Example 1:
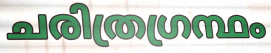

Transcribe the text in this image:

ചരിത്രഗ്രന്ഥം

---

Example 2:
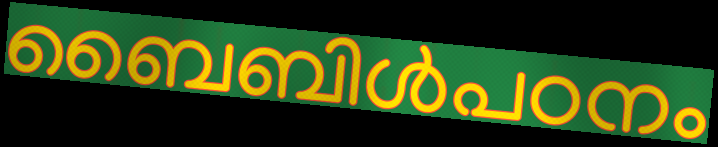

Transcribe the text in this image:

ബൈബിൾപഠനം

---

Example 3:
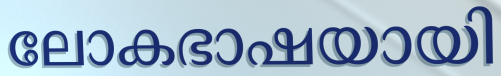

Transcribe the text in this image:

ലോകഭാഷയായി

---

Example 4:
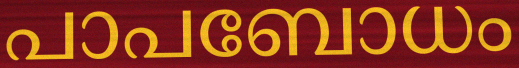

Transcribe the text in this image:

പാപബോധം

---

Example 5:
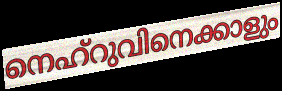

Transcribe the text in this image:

നെഹ്റുവിനെക്കാളും